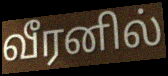
வீரனில்